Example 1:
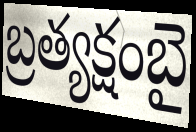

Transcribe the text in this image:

బ్రత్యక్షంబై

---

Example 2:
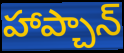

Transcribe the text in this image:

హాప్చాన్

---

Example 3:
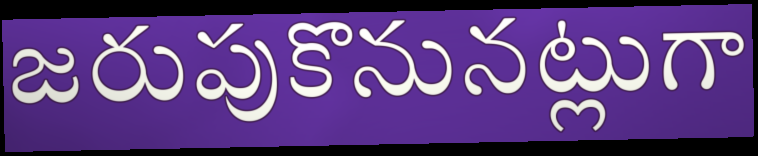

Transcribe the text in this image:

జరుపుకొనునట్లుగా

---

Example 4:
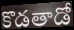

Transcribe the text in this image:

కొడతాడో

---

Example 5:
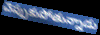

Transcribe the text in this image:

చెప్పుకుపోతున్నాడు